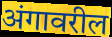
अंगावरील